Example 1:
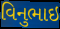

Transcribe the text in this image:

વિનુભાઇ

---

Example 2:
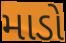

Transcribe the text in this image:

માડો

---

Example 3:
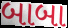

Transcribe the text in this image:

બાબા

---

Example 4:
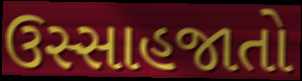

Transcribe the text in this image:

ઉસ્સાહજાતો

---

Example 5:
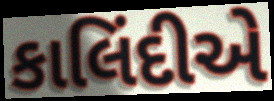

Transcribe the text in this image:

કાલિંદીએ